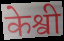
केश्वी